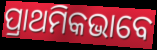
ପ୍ରାଥମିକଭାବେ